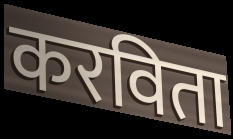
करविता